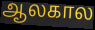
ஆலகால